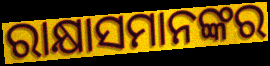
ରାକ୍ଷାସମାନଙ୍କର